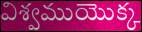
విశ్వముయొక్క